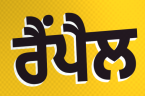
ਰੈਂਪੈਲ